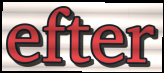
efter